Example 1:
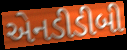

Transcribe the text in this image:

એનડીડીબી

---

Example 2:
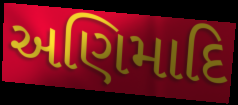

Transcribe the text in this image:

અણિમાદિ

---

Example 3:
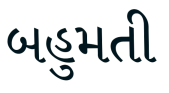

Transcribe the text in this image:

બહુમતી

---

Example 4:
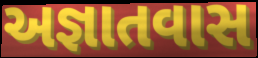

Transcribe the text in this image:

અજ્ઞાતવાસ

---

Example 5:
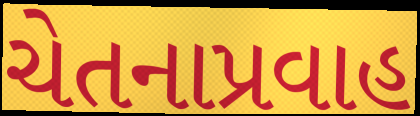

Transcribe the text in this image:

ચેતનાપ્રવાહ